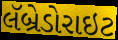
લૅબ્રેડોરાઇટ